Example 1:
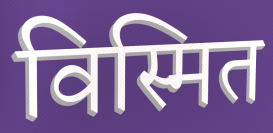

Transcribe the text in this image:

विस्मित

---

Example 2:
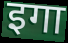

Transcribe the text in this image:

इगा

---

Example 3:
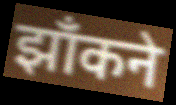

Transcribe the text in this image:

झाँकने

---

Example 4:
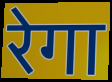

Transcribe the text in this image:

रेगा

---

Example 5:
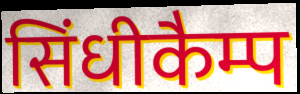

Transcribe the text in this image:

सिंधीकैम्प